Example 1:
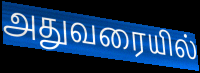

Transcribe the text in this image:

அதுவரையில்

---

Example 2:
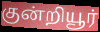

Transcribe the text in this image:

குன்றியூர்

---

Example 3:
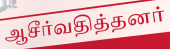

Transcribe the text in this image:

ஆசீர்வதித்தனர்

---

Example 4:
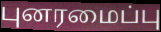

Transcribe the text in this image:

புனரமைப்பு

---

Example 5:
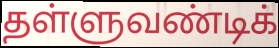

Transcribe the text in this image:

தள்ளுவண்டிக்